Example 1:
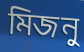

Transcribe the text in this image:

মিজনু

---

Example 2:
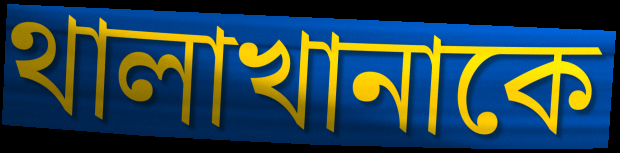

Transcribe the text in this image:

থালাখানাকে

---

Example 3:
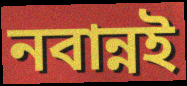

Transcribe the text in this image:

নবান্নই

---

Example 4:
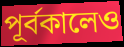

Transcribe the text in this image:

পূর্বকালেও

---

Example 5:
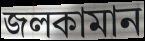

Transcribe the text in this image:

জলকামান